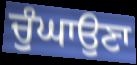
ਚੁੰਘਾਉਣਾ